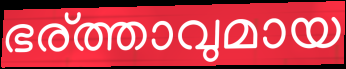
ഭര്ത്താവുമായ